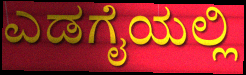
ಎಡಗೈಯಲ್ಲಿ